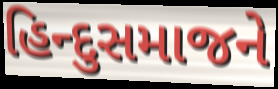
હિન્દુસમાજને